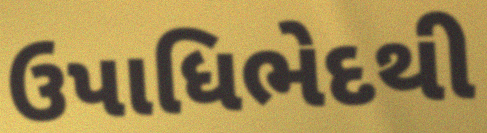
ઉપાધિભેદથી